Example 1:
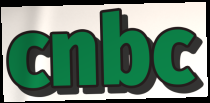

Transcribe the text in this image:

cnbc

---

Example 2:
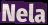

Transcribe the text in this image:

Nela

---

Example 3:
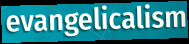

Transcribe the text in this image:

evangelicalism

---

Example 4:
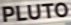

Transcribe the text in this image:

PLUTO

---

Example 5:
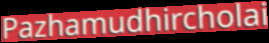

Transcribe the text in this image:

Pazhamudhircholai